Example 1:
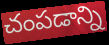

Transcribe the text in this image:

చంపడాన్ని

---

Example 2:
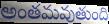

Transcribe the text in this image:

అంతమవుతుంది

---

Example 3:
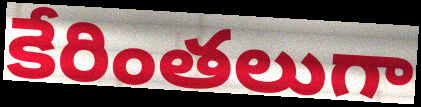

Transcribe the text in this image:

కేరింతలుగా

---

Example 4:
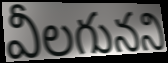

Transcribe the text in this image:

వీలగునని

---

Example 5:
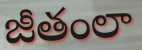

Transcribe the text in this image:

జీతంలా